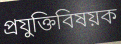
প্রযুক্তিবিষয়ক